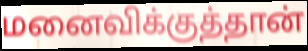
மனைவிக்குத்தான்